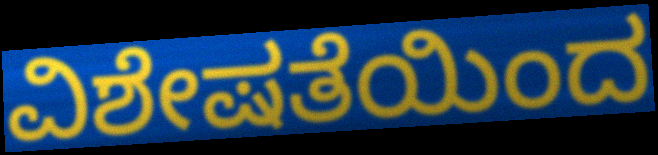
ವಿಶೇಷತೆಯಿಂದ